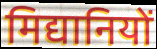
मिद्यानियों